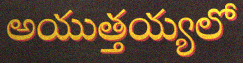
అయుత్తయ్యలో